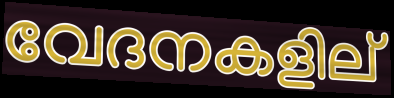
വേദനകളില്